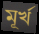
মূর্খ